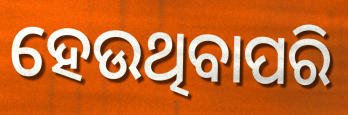
ହେଉଥିବାପରି